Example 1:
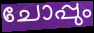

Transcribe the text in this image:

ചോപ്പും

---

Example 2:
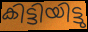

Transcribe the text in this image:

കിട്ടിയിട്ടു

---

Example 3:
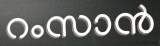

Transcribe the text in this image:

റംസാൻ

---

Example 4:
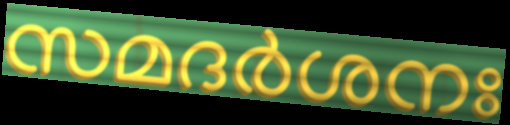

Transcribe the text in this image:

സമദർശനഃ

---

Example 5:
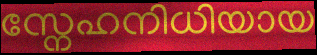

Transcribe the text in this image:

സ്നേഹനിധിയായ